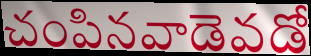
చంపినవాడెవడో